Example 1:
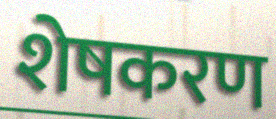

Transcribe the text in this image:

शेषकरण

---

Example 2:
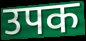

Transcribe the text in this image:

उपक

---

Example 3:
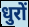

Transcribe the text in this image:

धुरों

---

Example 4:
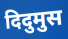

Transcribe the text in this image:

दिदुमुस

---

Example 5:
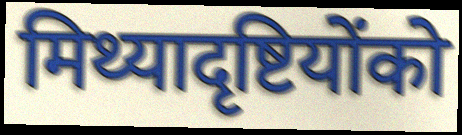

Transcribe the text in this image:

मिथ्यादृष्टियोंको